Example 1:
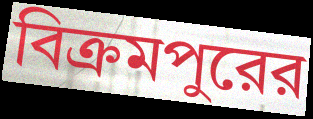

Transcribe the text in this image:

বিক্রমপুরের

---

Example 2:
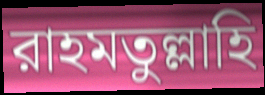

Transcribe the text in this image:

রাহমতুল্লাহি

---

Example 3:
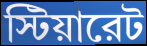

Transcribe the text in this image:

স্টিয়ারেট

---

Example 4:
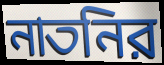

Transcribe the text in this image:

নাতনির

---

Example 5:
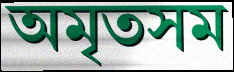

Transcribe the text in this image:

অমৃতসম